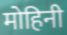
मोहिनी